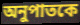
অনুপাতকে